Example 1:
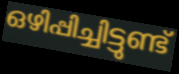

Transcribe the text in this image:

ഒഴിപ്പിച്ചിട്ടുണ്ട്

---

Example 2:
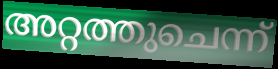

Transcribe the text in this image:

അറ്റത്തുചെന്ന്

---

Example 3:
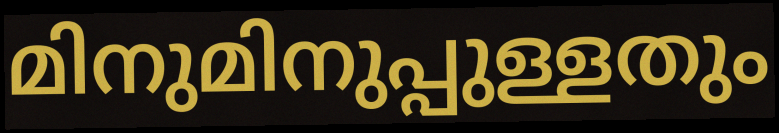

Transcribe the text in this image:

മിനുമിനുപ്പുള്ളതും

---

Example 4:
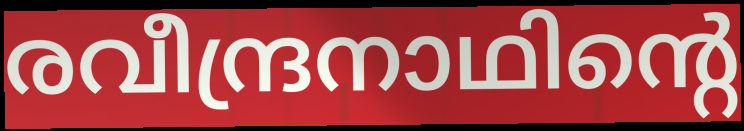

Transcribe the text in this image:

രവീന്ദ്രനാഥിന്റെ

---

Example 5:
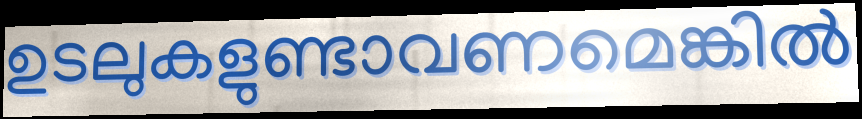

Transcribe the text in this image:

ഉടലുകളുണ്ടാവണമെങ്കിൽ